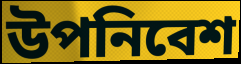
উপনিবেশ